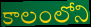
కాలంలోని